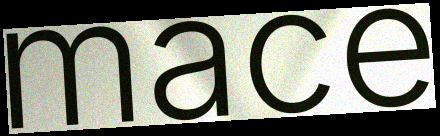
mace